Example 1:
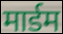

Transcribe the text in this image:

मार्डम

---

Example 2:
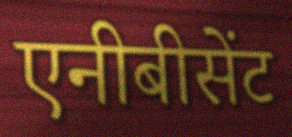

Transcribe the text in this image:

एनीबीसेंट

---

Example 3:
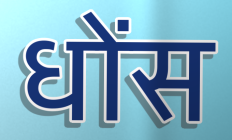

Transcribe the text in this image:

धोंस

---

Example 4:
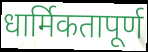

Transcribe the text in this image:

धार्मिकतापूर्ण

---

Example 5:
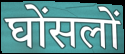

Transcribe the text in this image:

घोंसलों